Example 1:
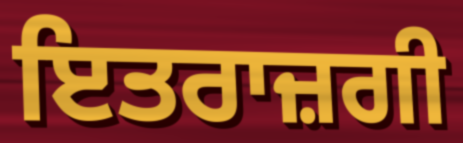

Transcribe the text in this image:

ਇਤਰਾਜ਼ਗੀ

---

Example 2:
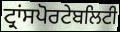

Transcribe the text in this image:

ਟ੍ਰਾਂਸਪੋਰਟੇਬਲਿਟੀ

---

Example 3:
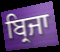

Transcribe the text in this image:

ਬ੍ਰਿਜਾ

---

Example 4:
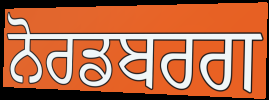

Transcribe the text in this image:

ਨੋਰਡਬਰਗ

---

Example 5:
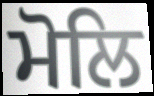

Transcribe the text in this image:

ਮੋਲਿ